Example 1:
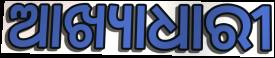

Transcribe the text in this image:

ଆଖ୍ୟାଧାରୀ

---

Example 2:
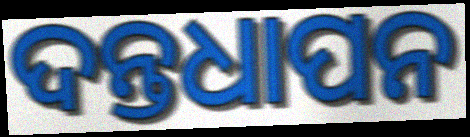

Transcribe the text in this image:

ଦନ୍ତଧାପନ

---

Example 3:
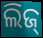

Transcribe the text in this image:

ଲିଜ୍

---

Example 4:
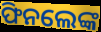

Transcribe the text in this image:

ଫିନଲେଙ୍କ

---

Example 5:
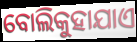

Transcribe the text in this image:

ବୋଲିକୁହାଯାଏ